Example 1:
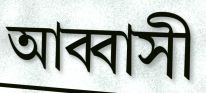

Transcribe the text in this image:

আব্বাসী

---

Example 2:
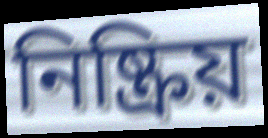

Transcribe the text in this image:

নিষ্ক্রিয়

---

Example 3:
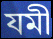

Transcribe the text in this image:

যমী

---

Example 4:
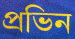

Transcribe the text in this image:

প্রভিন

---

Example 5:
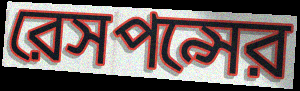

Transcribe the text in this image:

রেসপন্সের